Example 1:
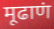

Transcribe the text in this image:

मूढाणं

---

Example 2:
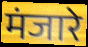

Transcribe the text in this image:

मंजारे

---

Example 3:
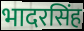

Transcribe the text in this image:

भादरसिंह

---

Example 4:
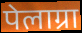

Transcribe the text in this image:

पेलाग्रा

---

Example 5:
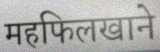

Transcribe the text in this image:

महफिलखाने